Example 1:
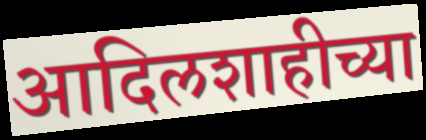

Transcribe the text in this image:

आदिलशाहीच्या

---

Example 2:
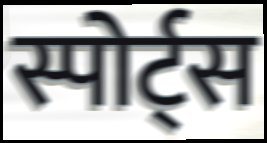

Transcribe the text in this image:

स्पोर्ट्स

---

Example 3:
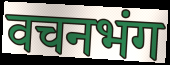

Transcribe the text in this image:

वचनभंग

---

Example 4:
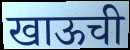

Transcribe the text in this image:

खाऊची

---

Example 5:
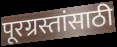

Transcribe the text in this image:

पूरग्रस्तांसाठी